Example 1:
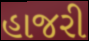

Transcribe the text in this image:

હાજરી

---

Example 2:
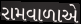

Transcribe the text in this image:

રામવાળાએ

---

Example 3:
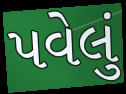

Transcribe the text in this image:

પવેલું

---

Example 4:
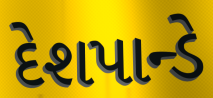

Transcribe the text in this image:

દેશપાન્ડે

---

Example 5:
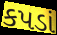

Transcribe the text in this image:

કપડાં